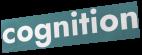
cognition